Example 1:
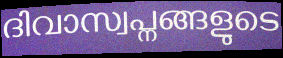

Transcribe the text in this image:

ദിവാസ്വപ്നങ്ങളുടെ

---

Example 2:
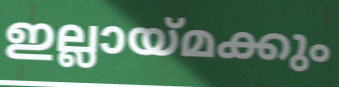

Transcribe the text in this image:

ഇല്ലായ്മക്കും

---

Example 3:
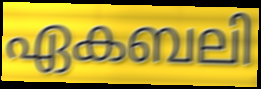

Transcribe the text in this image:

ഏകബലി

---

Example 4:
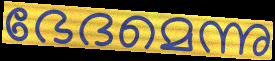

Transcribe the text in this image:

ഭേദമെന്നു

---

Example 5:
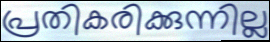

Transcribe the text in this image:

പ്രതികരിക്കുന്നില്ല